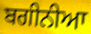
ਬਗੀਨੀਆ